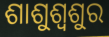
ଶାଶୁଶ୍ୱଶୁର